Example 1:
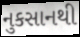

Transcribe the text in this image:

નુકસાનથી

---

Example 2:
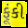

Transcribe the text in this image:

ફૂંકી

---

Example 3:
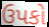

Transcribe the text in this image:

ઉપકો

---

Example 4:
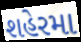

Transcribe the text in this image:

શહેરમા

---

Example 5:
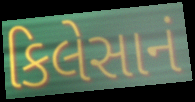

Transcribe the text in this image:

કિલેસાનં